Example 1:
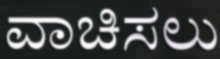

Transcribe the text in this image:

ವಾಚಿಸಲು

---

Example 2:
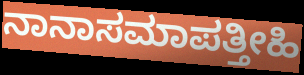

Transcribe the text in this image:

ನಾನಾಸಮಾಪತ್ತೀಹಿ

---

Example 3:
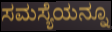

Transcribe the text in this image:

ಸಮಸ್ಯೆಯನ್ನೂ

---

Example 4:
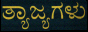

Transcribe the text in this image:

ತ್ಯಾಜ್ಯಗಳು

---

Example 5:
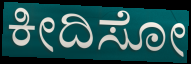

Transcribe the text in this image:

ಕೀದಿಸೋ